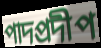
পাদপ্রদীপ